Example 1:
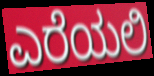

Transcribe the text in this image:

ಎರೆಯಲಿ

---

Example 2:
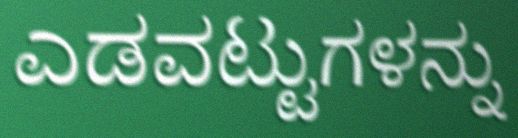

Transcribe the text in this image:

ಎಡವಟ್ಟುಗಳನ್ನು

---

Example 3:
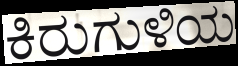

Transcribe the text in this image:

ಕಿರುಗುಳಿಯ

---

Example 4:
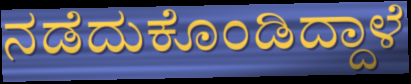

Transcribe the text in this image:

ನಡೆದುಕೊಂಡಿದ್ದಾಳೆ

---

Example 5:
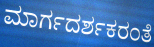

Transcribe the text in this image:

ಮಾರ್ಗದರ್ಶಕರಂತೆ